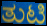
ತುಟಿ